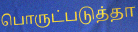
பொருட்படுத்தா